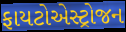
ફાયટોએસ્ટ્રોજન